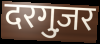
दरगुज़र